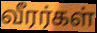
வீரர்கள்